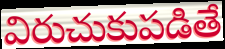
విరుచుకుపడితే